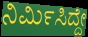
ನಿರ್ಮಿಸಿದ್ದೇ